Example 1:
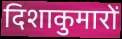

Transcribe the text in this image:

दिशाकुमारों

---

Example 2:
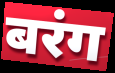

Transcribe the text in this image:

बरंग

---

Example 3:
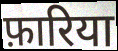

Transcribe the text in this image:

फ़ारिया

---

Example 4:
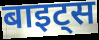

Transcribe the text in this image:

बाइट्स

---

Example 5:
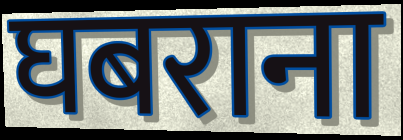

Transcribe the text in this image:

घबराना